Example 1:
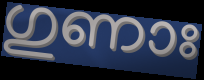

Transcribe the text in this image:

ഗുണാഃ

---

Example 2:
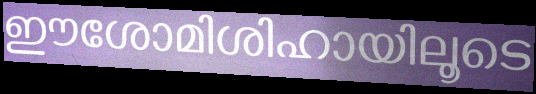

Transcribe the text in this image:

ഈശോമിശിഹായിലൂടെ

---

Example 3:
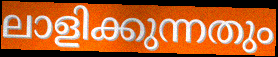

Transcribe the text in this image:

ലാളിക്കുന്നതും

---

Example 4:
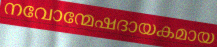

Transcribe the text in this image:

നവോന്മേഷദായകമായ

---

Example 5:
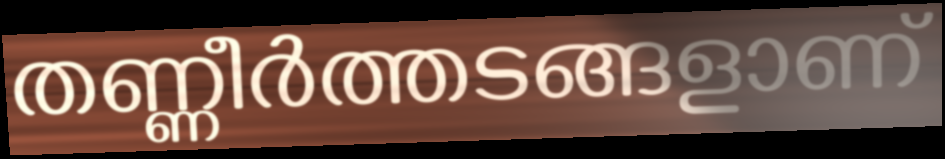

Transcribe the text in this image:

തണ്ണീർത്തടങ്ങളാണ്